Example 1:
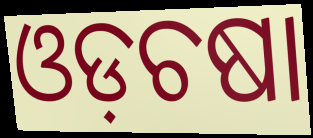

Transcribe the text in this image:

ଓଡ଼ଚଷା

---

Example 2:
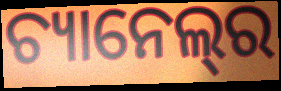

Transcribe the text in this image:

ଚ୍ୟାନେଲ୍‌ର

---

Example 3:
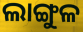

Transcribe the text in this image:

ଲାଙ୍ଗୁଳ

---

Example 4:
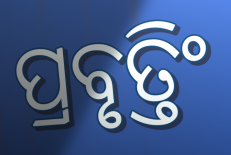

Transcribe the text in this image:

ପ୍ରବୃତ୍ତିଂ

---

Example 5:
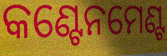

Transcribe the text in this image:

କଣ୍ଟେନମେଣ୍ଟ